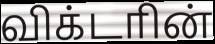
விக்டரின்